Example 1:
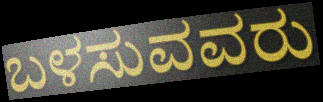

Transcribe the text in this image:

ಬಳಸುವವರು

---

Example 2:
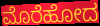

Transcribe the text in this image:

ಮೊರೆಹೋದ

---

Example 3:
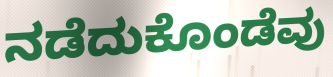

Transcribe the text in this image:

ನಡೆದುಕೊಂಡೆವು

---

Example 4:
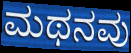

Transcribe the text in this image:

ಮಥನವು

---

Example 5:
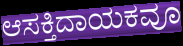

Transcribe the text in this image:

ಆಸಕ್ತಿದಾಯಕವೂ